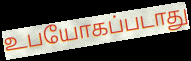
உபயோகப்படாது